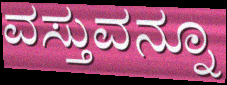
ವಸ್ತುವನ್ನೂ